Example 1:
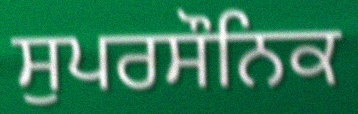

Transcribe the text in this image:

ਸੁਪਰਸੌਨਿਕ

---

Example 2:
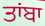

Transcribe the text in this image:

ਤਾਂਬਾ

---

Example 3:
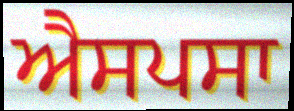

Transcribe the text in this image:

ਐਸਪਸਾ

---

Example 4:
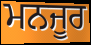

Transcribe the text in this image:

ਮਨਜੂਰ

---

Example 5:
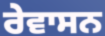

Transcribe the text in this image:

ਰੇਵਾਸਨ